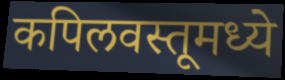
कपिलवस्तूमध्ये